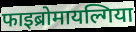
फाइब्रोमायल्गिया